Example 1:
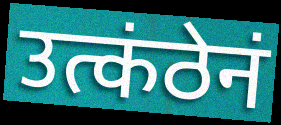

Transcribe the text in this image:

उत्कंठेनं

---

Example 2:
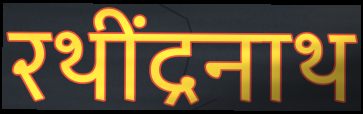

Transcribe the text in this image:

रथींद्रनाथ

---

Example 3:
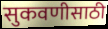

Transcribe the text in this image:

सुकवणीसाठी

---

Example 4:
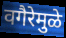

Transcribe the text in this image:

वगैरेमुळे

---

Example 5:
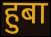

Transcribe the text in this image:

हुबा